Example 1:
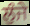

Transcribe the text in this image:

ਲੁੰਜੇ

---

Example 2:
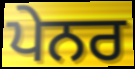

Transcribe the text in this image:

ਪੇਨਰ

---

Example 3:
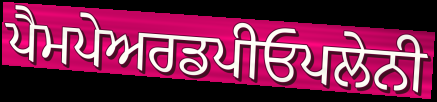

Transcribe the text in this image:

ਪੈਮਪੇਅਰਡਪੀਓਪਲੇਨੀ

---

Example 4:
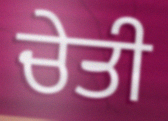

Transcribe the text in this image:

ਚੇਤੀ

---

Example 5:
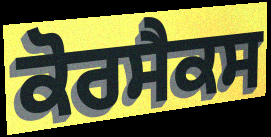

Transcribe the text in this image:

ਕੋਰਸੈਕਸ